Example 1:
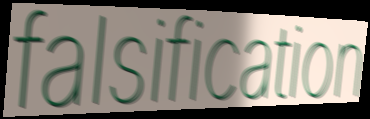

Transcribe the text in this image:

falsification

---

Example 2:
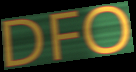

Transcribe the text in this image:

DFO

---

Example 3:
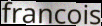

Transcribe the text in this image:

francois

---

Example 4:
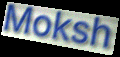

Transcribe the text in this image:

Moksh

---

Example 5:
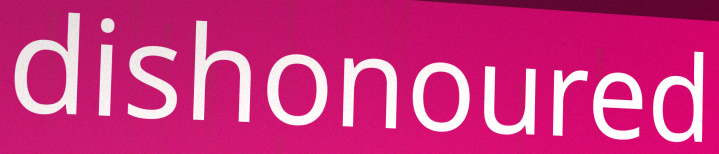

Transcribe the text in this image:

dishonoured